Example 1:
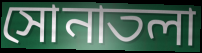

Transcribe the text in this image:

সোনাতলা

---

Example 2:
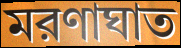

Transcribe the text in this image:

মরণাঘাত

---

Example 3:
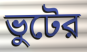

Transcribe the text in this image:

ভুটের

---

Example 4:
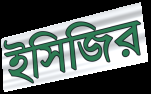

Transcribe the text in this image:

ইসিজির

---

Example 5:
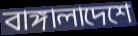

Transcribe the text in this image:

বাঙ্গালাদেশে